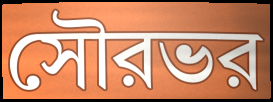
সৌরভর